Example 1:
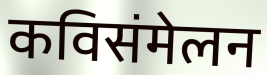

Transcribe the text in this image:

कविसंमेलन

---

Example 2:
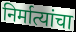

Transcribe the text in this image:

निर्मात्यांचा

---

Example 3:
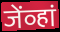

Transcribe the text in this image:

जेंव्हां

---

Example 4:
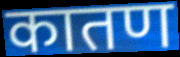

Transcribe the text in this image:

कातण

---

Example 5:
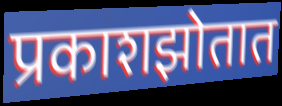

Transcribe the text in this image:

प्रकाशझोतात